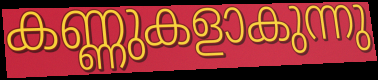
കണ്ണുകളാകുന്നു